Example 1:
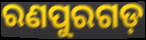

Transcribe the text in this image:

ରଣପୁରଗଡ଼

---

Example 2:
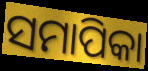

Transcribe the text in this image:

ସମାପିକା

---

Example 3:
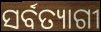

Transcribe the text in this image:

ସର୍ବତ୍ୟାଗୀ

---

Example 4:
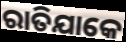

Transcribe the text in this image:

ରାତିଯାକେ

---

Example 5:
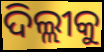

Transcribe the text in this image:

ଦିଲ୍ଲୀକୁ